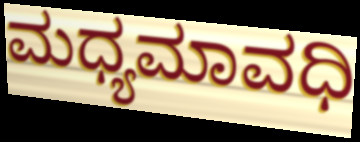
ಮಧ್ಯಮಾವಧಿ